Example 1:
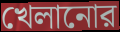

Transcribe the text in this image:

খেলানোর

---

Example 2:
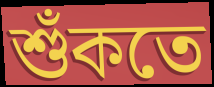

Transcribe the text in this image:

শুঁকতে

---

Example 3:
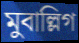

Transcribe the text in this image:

মুবাল্লিগ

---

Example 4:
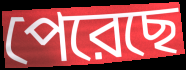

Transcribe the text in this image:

পেরেছে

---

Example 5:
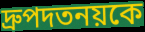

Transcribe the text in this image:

দ্রুপদতনয়কে